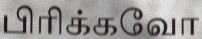
பிரிக்கவோ